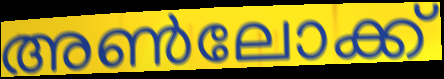
അൺലോക്ക്